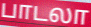
பாடலா